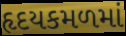
હૃદયકમળમાં